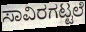
ಸಾವಿರಗಟ್ಟಲೆ